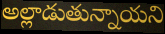
అల్లాడుతున్నాయని